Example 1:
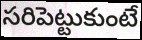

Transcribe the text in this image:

సరిపెట్టుకుంటే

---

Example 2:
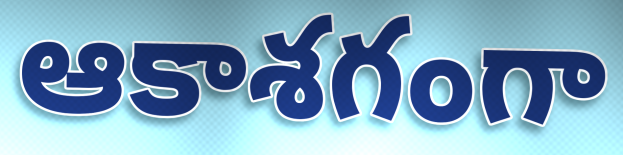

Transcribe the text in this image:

ఆకాశగంగా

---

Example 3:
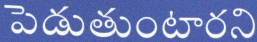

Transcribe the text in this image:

పెడుతుంటారని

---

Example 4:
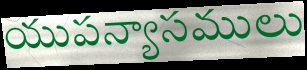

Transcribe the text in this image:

యుపన్యాసములు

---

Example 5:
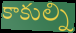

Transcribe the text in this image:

కాకుల్ని